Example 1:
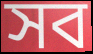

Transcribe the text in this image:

সব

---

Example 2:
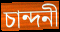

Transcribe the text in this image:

চান্দনী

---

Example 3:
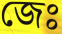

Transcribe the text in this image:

জেঃ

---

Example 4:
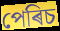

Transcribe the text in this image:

পেৰিচ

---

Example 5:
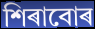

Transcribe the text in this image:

শিৰাবোৰ